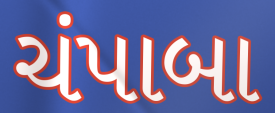
ચંપાબા